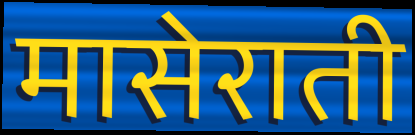
मासेराती